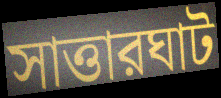
সাত্তারঘাট